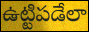
ఉట్టిపడేలా